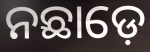
ନଛାଡ଼େ